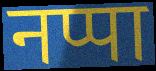
नप्पा